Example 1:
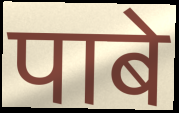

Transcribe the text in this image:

पाबे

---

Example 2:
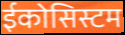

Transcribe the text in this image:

ईकोसिस्‍टम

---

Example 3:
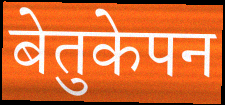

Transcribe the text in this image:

बेतुकेपन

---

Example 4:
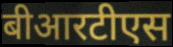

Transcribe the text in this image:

बीआरटीएस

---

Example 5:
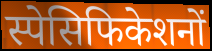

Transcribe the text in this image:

स्पेसिफिकेशनों